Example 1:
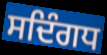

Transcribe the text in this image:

ਸਦਿੰਗਧ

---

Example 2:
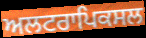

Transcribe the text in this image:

ਅਲਟਰਾਪਿਕਸਲ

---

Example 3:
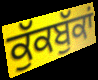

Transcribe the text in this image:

ਕੁੱਕਬੁੱਕਾਂ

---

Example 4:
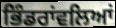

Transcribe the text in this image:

ਭਿੰਡਰਾਂਵਲਿਆਂ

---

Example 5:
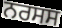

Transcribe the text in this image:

ਨਰਸਸ